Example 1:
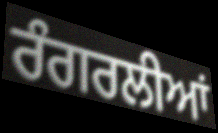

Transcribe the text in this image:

ਰੰਗਰਲੀਆਂ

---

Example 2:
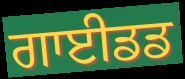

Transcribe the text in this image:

ਗਾਈਡਡ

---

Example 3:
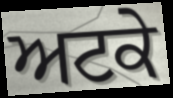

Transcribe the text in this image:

ਅਟਕੇ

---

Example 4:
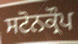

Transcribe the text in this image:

ਸਟੋਨਕ੍ਰੌਪ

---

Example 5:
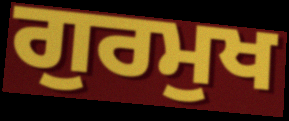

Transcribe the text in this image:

ਗੁਰਮੁਖ